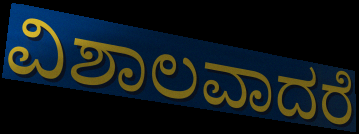
ವಿಶಾಲವಾದರೆ